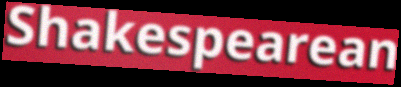
Shakespearean